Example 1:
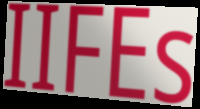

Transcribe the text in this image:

IIFEs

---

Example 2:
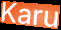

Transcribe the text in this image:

Karu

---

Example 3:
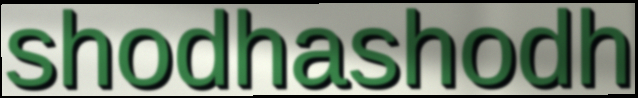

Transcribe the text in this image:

shodhashodh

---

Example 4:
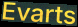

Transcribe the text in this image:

Evarts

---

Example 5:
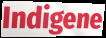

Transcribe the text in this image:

Indigene